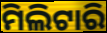
ମିଲିଟାରି